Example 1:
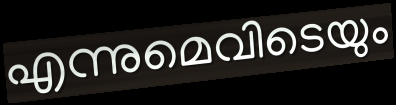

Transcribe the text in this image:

എന്നുമെവിടെയും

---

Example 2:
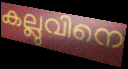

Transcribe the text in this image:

കല്ലുവിനെ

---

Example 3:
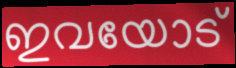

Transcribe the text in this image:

ഇവയോട്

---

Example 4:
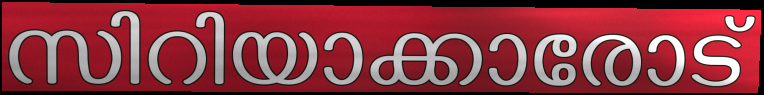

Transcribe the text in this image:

സിറിയാക്കാരോട്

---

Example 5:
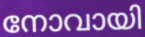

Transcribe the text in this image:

നോവായി